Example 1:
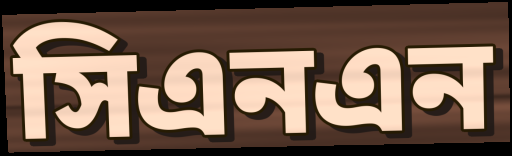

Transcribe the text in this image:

সিএনএন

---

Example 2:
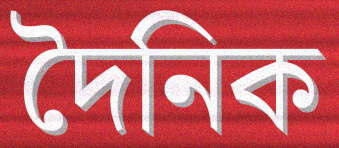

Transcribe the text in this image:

দৈনিক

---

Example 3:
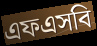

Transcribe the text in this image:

এফএসবি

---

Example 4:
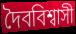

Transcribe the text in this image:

দৈববিশ্বাসী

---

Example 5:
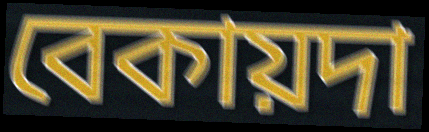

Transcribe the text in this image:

বেকায়দা